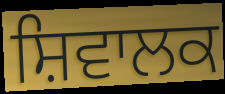
ਸ਼ਿਵਾਲਕ